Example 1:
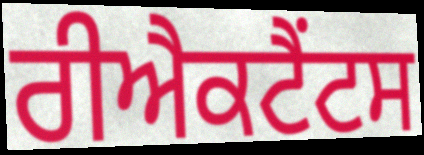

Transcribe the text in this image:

ਰੀਐਕਟੈਂਟਸ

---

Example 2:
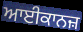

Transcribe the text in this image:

ਆਈਕਾਨਜ਼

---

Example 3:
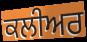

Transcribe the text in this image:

ਕਲੀਅਰ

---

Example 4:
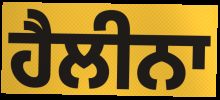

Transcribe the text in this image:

ਹੈਲੀਨਾ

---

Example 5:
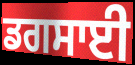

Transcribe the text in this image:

ਡਗਸਾਈ